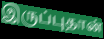
இருப்புதான்